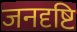
जनदृष्टि